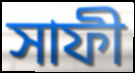
সাফী